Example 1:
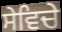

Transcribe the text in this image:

ਸੇਵਿਚੇ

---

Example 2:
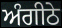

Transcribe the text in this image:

ਅੰਗੀਠੇ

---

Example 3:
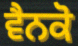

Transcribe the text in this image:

ਵੈਨਕੋ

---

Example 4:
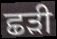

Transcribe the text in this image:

ਛੜੀ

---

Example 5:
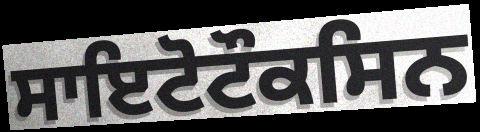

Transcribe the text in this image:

ਸਾਇਟੋਟੌਕਸਿਨ